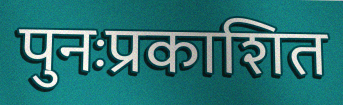
पुनःप्रकाशित